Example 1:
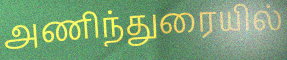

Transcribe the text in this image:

அணிந்துரையில்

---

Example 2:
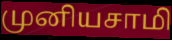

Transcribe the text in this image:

முனியசாமி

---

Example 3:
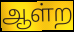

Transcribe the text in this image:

ஆள்ற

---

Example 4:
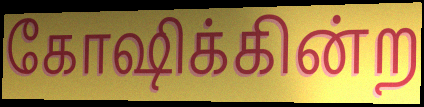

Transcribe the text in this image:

கோஷிக்கின்ற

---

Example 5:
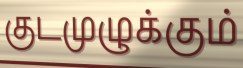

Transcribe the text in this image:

குடமுழுக்கும்